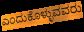
ಎಂದುಕೊಳ್ಳುವವರು